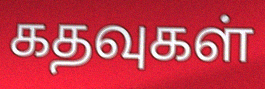
கதவுகள்